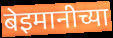
बेइमानीच्या